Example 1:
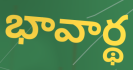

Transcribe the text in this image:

భావార్థ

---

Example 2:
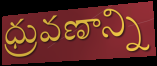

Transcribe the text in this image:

ధ్రువణాన్ని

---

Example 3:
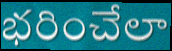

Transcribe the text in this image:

భరించేలా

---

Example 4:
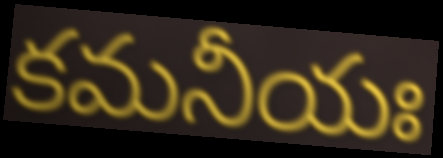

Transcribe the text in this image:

కమనీయః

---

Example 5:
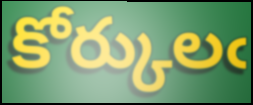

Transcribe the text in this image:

కోర్కులఁ